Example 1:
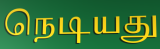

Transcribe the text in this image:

நெடியது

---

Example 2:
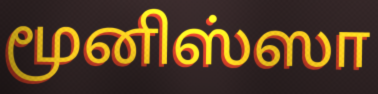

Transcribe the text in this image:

மூனிஸ்ஸா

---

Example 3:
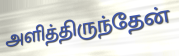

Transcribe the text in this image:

அளித்திருந்தேன்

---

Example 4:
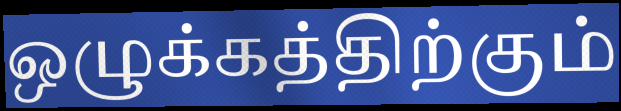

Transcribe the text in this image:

ஒழுக்கத்திற்கும்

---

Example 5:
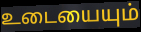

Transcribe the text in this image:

உடையையும்